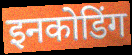
इनकोडिंग